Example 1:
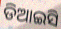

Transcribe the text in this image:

ଡିଆଇସି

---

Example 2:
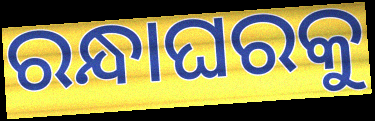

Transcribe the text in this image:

ରନ୍ଧାଘରକୁ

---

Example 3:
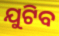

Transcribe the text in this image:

ଯୁଟିବ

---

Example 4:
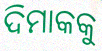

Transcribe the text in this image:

ଦିମାକକୁ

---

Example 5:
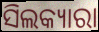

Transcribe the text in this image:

ସିଲକ୍ୟାରା